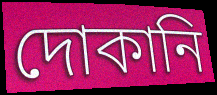
দোকানি